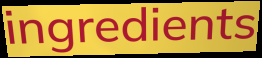
ingredients